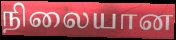
நிலையான